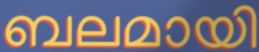
ബലമായി